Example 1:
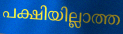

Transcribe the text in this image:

പക്ഷിയില്ലാത്ത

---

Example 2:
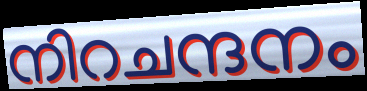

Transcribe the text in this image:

നിറചന്ദനം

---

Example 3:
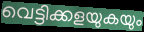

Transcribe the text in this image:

വെട്ടിക്കളയുകയും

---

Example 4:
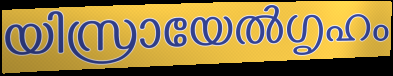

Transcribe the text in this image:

യിസ്രായേൽഗൃഹം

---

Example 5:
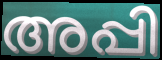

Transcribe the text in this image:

അപ്പി